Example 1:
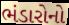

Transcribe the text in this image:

ભંડારોનો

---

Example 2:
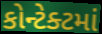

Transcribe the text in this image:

કોન્ટેક્ટમાં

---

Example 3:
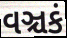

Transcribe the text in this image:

વઞ્ચકં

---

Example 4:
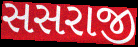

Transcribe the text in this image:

સસરાજી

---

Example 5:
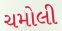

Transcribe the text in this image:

ચમોલી